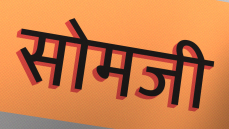
सोमजी